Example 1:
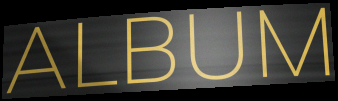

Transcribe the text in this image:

ALBUM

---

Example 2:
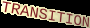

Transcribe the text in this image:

TRANSITION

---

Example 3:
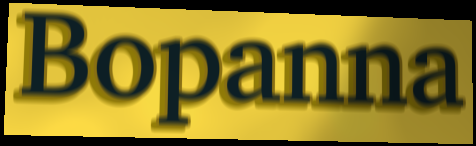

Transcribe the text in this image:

Bopanna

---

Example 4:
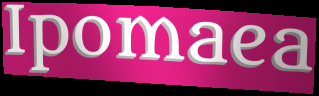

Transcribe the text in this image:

Ipomaea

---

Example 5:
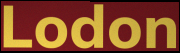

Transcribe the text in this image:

Lodon